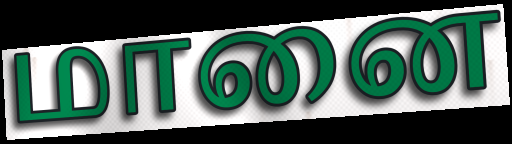
மானை